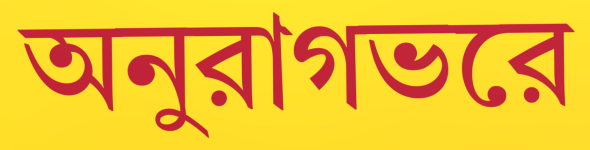
অনুরাগভরে